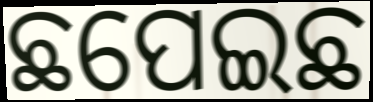
ଛପେଇଛ